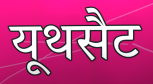
यूथसैट